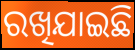
ରଖିଯାଇଛି